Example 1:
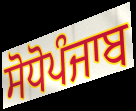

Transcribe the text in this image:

ਸੋਧੋਪੰਜਾਬ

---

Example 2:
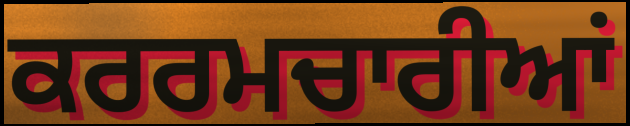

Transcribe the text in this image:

ਕਰਰਮਚਾਰੀਆਂ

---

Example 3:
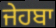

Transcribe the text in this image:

ਜੇਹਬਾ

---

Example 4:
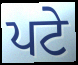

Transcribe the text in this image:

ਪਟੇ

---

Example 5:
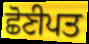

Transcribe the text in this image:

ਛੋਣੀਪਤ